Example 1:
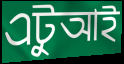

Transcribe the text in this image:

এটুআই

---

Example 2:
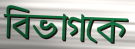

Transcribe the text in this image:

বিভাগকে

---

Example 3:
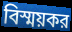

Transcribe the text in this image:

বিস্ময়কর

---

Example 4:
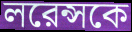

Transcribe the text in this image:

লরেন্সকে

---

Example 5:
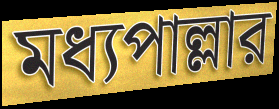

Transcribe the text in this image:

মধ্যপাল্লার